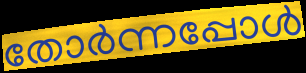
തോർന്നപ്പോൾ